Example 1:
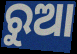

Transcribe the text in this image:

ରୁଆ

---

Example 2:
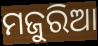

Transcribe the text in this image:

ମଜୁରିଆ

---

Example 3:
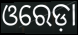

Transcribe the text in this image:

ଓରେଡ଼ା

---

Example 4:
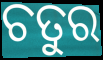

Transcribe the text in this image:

ଚତୁର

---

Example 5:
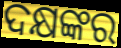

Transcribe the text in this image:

ଦକ୍ଷଙ୍କର